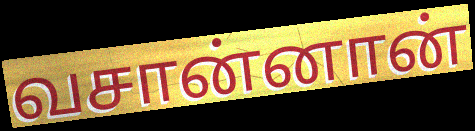
வசான்னான்